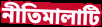
নীতিমালাটি